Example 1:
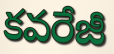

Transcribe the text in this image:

కవరేజీ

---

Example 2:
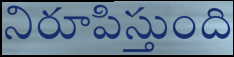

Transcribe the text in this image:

నిరూపిస్తుంది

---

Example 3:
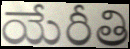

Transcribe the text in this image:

యేరీతి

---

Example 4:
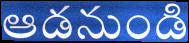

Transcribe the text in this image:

ఆడనుండి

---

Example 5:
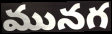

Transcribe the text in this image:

మునగ